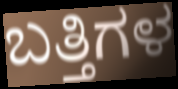
ಬತ್ತಿಗಳ